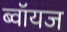
ब्वॉयज